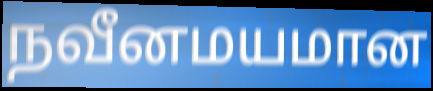
நவீனமயமான